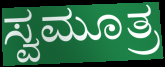
ಸ್ವಮೂತ್ರ